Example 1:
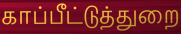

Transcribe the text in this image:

காப்பீட்டுத்துறை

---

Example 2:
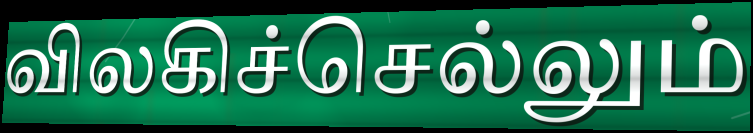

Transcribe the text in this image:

விலகிச்செல்லும்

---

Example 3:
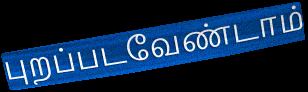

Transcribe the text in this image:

புறப்படவேண்டாம்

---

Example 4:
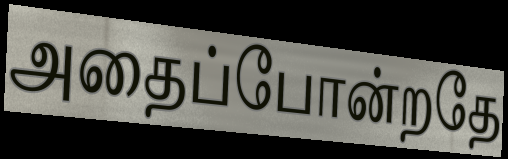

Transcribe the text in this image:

அதைப்போன்றதே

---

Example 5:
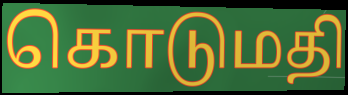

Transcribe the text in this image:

கொடுமதி